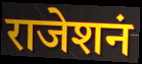
राजेशनं